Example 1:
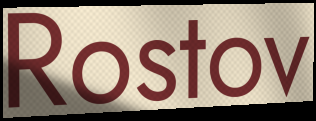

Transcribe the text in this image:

Rostov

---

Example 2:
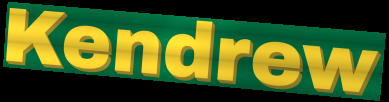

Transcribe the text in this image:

Kendrew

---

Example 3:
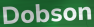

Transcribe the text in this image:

Dobson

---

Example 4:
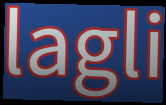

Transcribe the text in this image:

lagli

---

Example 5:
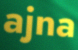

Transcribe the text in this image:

ajna